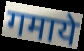
गमाये